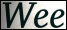
Wee